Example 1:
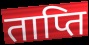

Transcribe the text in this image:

ताप्ति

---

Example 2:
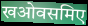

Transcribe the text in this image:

खओवसमिए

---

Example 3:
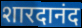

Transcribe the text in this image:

शारदानंद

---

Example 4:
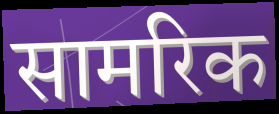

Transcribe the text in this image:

सामरिक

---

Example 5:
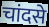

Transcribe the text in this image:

चांदसे